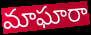
మాఘారా